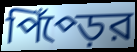
পিঁপ্ড়ের